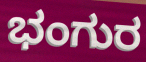
ಭಂಗುರ